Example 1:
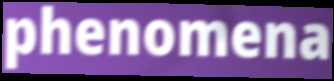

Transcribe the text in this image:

phenomena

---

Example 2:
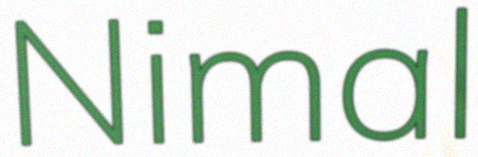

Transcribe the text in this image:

Nimal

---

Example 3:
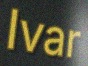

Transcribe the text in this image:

Ivar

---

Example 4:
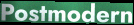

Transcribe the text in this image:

Postmodern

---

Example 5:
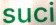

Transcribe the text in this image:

suci